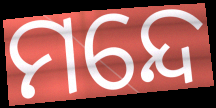
ମନ୍ଦେ